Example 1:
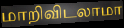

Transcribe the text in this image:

மாறிவிடலாமா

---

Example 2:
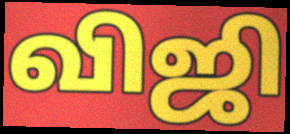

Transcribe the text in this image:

விஜி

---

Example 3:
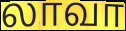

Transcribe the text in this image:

லாவா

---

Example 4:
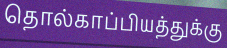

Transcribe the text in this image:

தொல்காப்பியத்துக்கு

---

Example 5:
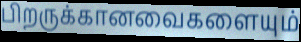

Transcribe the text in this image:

பிறருக்கானவைகளையும்